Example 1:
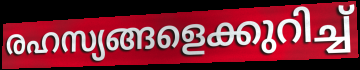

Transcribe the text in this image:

രഹസ്യങ്ങളെക്കുറിച്ച്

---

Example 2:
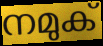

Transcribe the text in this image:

നമുക്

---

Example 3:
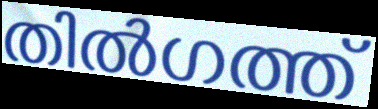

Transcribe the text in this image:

തിൽഗത്ത്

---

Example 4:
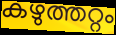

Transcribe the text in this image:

കഴുത്തറ്റം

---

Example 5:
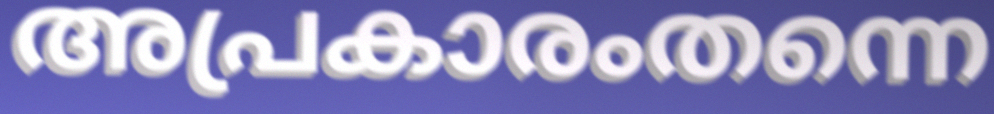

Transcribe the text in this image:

അപ്രകാരംതന്നെ